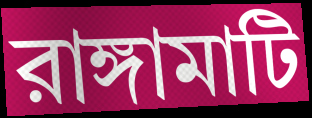
রাঙ্গামাটি